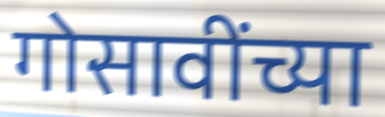
गोसावींच्या